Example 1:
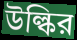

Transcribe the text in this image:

উল্কির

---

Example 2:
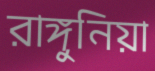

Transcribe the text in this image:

রাঙ্গুনিয়া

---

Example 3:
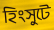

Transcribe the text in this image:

হিংসুটে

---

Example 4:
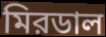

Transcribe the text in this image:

মিরডাল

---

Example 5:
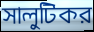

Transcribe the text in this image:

সালুটিকর